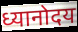
ध्यानोदय